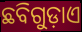
ଛବିଗୁଡ଼ାଏ